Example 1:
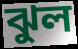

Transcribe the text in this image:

ঝুল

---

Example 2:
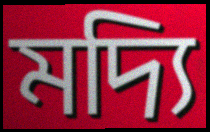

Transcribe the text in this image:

মদ্যি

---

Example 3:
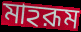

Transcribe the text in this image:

মাহরূম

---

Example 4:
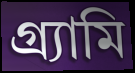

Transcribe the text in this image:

গ্র্যামি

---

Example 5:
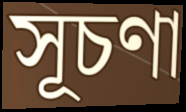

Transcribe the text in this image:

সূচণা